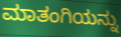
ಮಾತಂಗಿಯನ್ನು